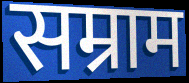
सम्राम